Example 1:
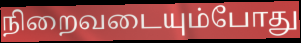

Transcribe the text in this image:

நிறைவடையும்போது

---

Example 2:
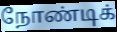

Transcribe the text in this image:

நோண்டிக்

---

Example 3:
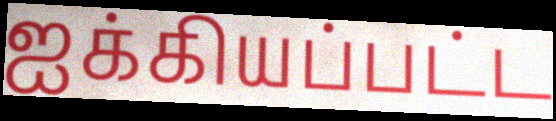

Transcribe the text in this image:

ஐக்கியப்பட்ட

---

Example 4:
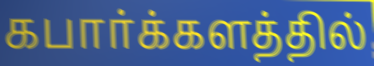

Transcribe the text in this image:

கபார்க்களத்தில்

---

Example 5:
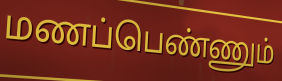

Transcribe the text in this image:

மணப்பெண்ணும்